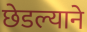
छेडल्याने